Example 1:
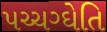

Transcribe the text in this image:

પચ્ચગ્ઘેતિ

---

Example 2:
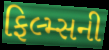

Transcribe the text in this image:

ફિલ્મ્સની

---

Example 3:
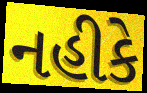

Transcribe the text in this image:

નહીકે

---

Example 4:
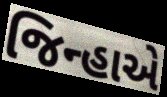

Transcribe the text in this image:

જિન્હાએ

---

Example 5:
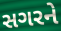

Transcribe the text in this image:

સગરને